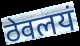
ठेवलयं